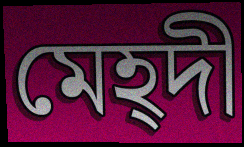
মেহ্দী